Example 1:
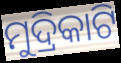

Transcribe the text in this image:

ମୁଦ୍ରିକାଟି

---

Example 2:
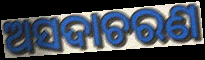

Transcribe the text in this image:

ଅସଦାଚରଣ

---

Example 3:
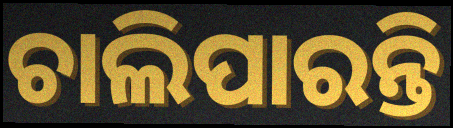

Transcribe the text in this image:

ଚାଲିପାରନ୍ତି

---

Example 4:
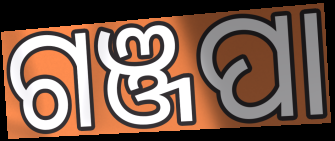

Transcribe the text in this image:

ଗଞ୍ଜପା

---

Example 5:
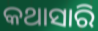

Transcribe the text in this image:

କଥାସାରି